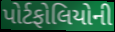
પોર્ટફોલિયોની